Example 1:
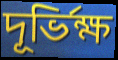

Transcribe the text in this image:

দূর্ভিক্ষ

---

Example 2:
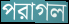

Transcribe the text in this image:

পরাগল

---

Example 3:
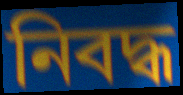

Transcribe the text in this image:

নিবদ্ধ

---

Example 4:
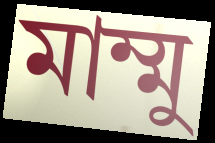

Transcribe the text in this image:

মাম্মু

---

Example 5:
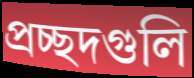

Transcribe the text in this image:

প্রচ্ছদগুলি